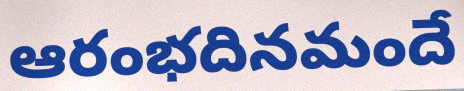
ఆరంభదినమందే